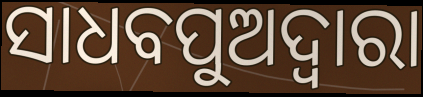
ସାଧବପୁଅଦ୍ୱାରା